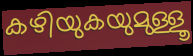
കഴിയുകയുമുള്ളൂ